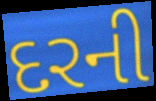
દરની